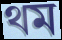
থম